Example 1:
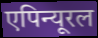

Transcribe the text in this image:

एपिन्यूरल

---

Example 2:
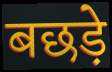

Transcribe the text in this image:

बछड़े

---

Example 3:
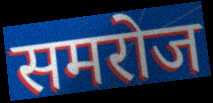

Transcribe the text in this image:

समरोज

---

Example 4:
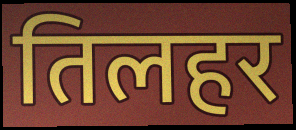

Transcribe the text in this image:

तिलहर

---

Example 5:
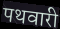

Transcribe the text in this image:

पथवारी